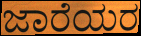
ಜಾರೆಯರ